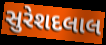
સુરેશદલાલ